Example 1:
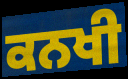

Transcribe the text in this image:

ਕਨਖੀ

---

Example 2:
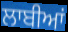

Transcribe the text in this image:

ਲਾਬੀਆਂ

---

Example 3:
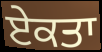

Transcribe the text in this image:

ਏਕਤਾ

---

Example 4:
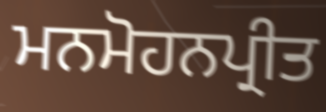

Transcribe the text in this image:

ਮਨਮੋਹਨਪ੍ਰੀਤ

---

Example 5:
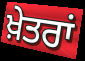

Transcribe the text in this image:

ਖ਼ੇਤਰਾਂ